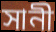
সানী